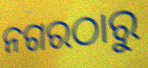
ନଗରଠାରୁ